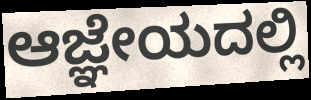
ಆಜ್ಞೇಯದಲ್ಲಿ